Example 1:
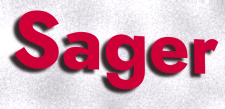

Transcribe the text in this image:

Sager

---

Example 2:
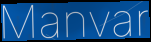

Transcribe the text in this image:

Manvar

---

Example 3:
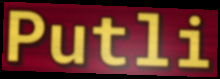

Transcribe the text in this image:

Putli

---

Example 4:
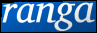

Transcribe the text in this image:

ranga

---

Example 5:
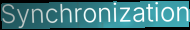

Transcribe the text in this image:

Synchronization